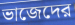
ভাজেদের